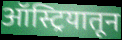
ऑस्ट्रियातून